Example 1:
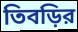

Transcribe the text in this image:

তিবড়ির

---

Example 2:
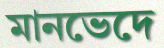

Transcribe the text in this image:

মানভেদে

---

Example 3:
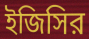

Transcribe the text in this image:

ইজিসির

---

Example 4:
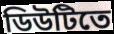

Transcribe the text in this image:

ডিউটিতে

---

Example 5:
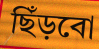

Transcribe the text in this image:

ছিঁড়বো